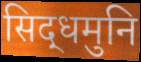
सिद्धमुनि